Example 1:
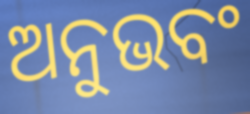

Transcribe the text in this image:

ଅନୁଭବଂ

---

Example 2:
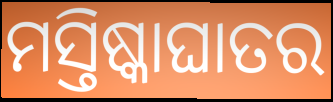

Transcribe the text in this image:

ମସ୍ତିଷ୍କାଘାତର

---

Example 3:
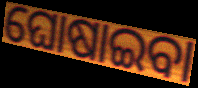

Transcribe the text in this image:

ଘୋଷାଇବା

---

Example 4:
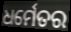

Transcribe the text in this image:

ଧର୍ମେତର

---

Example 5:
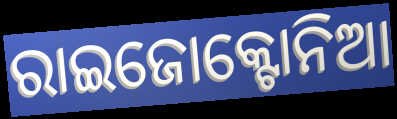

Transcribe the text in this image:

ରାଇଜୋକ୍ଟୋନିଆ